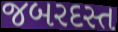
જબરદસ્ત